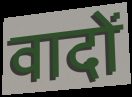
वादों